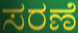
ಸರಣೆ